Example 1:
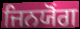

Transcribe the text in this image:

ਜਿਨਯੋਂਗ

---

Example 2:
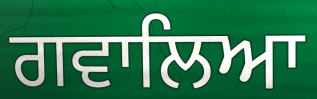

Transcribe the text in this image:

ਗਵਾਲਿਆ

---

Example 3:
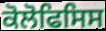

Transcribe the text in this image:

ਕੋਲੋਫਿਸਿਸ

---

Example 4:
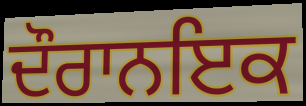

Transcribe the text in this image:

ਦੌਰਾਨਇਕ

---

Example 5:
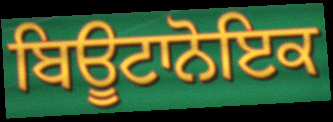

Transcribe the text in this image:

ਬਿਊਟਾਨੋਇਕ